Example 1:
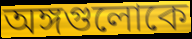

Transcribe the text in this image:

অঙ্গগুলোকে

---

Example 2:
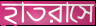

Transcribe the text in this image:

হাতরাসে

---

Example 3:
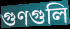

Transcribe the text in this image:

গুণগুলি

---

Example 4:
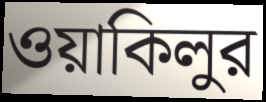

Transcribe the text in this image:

ওয়াকিলুর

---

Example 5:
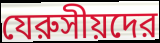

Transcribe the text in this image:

যেরুসীয়দের